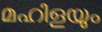
മഹിളയും